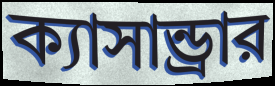
ক্যাসান্ড্রার